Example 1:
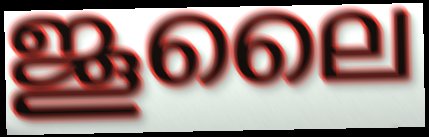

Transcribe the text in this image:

ജൂലൈ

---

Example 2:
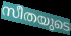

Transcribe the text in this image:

സീതയുടെ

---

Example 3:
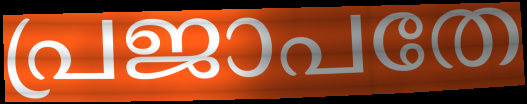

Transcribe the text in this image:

പ്രജാപതേ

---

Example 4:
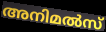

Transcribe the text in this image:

അനിമൽസ്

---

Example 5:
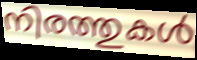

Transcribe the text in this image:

നിരത്തുകൾ